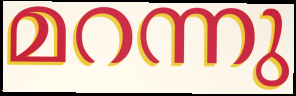
മറന്നു